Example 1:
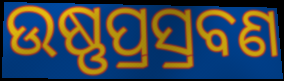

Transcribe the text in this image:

ଉଷ୍ଣପ୍ରସ୍ରବଣ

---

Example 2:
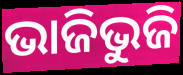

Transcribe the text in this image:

ଭାଜିଭୁଜି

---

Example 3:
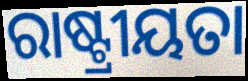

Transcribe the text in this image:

ରାଷ୍ଟ୍ରୀୟତା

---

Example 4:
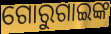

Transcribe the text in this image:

ଗୋରୁଗାଇଙ୍କ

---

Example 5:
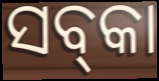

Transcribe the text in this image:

ସବ୍‌କା